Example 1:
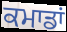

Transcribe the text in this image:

ਕਮਾਡਾਂ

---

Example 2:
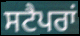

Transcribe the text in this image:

ਸਟੈਪਰਾਂ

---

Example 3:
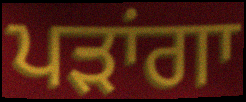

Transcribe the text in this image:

ਪੜਾਂਗਾ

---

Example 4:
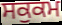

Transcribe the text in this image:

ਸਕੁਕਮ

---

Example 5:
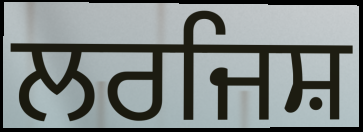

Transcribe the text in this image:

ਲਰਜਿਸ਼